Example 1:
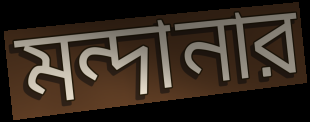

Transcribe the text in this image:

মন্দানার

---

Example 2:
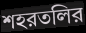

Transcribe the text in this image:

শহরতলির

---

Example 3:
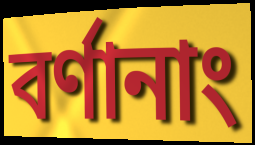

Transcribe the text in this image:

বর্ণানাং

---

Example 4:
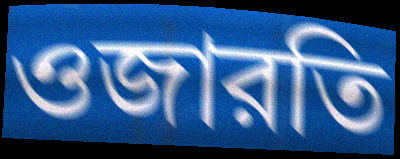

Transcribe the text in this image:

ওজারতি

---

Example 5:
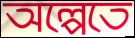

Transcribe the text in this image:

অল্পেতে